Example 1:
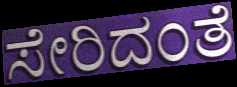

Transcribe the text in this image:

ಸೇರಿದಂತೆ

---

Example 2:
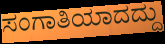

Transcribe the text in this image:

ಸಂಗಾತಿಯಾದದ್ದು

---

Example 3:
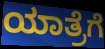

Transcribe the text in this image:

ಯಾತ್ರೆಗೆ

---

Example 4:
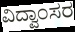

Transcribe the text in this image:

ವಿದ್ವಾಂಸರ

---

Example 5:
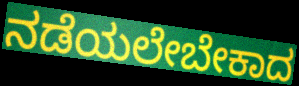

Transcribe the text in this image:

ನಡೆಯಲೇಬೇಕಾದ